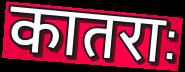
कातराः